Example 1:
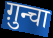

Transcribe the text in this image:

ग़ुन्चा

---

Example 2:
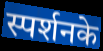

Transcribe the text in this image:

स्पर्शनके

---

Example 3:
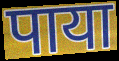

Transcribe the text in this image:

पाया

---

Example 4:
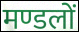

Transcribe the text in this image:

मण्‍डलों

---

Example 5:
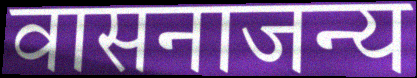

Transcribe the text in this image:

वासनाजन्य